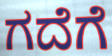
ಗದೆಗೆ